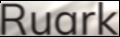
Ruark